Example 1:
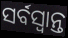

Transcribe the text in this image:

ସର୍ବସ୍ୱାନ୍ତ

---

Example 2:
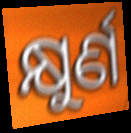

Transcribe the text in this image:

କ୍ଷୁର୍ଣ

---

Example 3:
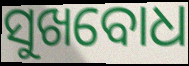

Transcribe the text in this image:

ସୁଖବୋଧ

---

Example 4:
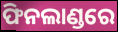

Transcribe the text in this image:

ଫିନଲାଣ୍ଡରେ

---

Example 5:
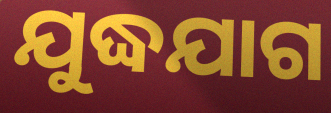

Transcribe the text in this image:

ଯୁଦ୍ଧଯାଗ